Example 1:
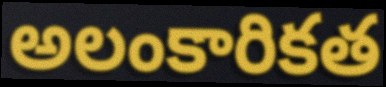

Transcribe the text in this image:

అలంకారికత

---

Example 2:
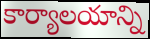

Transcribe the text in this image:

కార్యాలయాన్ని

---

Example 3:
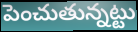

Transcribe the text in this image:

పెంచుతున్నట్టు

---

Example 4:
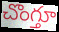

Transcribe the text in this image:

చొంగ్తూ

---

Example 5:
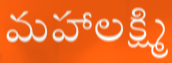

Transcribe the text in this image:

మహాలక్ష్మి